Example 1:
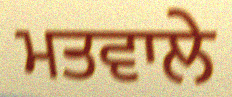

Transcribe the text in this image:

ਮਤਵਾਲੇ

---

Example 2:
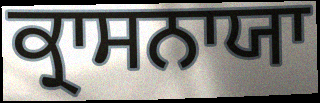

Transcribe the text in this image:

ਕ੍ਰਾਸਨਾਯਾ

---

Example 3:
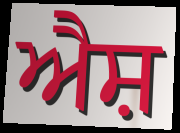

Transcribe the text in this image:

ਐਸ਼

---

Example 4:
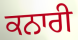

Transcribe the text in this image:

ਕਨਾਰੀ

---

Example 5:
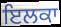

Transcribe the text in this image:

ਇਲਕਾ